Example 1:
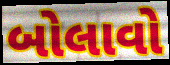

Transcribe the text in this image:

બોલાવો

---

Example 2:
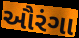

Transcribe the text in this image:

ઔરંગા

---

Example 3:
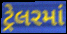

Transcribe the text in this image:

ટ્રેલરમાં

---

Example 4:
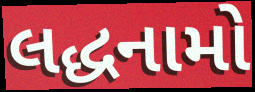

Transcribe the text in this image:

લદ્ધનામો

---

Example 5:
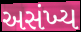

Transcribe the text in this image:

અસંખ્ય